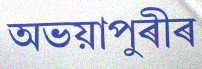
অভয়াপুৰীৰ